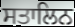
ਸਤਾਲਿਨ